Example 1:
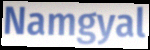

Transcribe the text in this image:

Namgyal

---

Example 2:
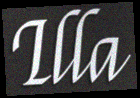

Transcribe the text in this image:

Illa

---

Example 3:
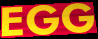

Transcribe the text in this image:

EGG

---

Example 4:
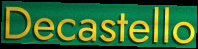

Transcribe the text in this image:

Decastello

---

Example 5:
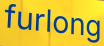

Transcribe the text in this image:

furlong